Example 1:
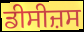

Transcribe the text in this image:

ਡੀਸੀਜ਼ਸ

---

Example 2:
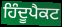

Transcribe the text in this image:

ਹਿੰਦੂਪੈਕਟ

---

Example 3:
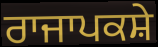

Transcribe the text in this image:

ਰਾਜਾਪਕਸ਼ੇ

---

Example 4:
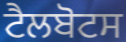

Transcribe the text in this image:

ਟੈਲਬੋਟਸ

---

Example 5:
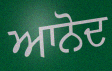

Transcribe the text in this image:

ਆਨੋਦ